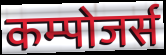
कम्पोजर्स